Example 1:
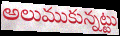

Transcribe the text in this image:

అలుముకున్నట్టు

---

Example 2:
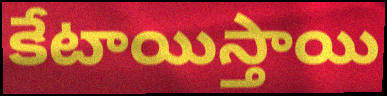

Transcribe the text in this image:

కేటాయిస్తాయి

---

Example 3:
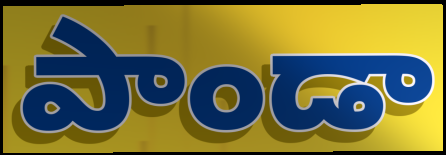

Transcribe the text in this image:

పాండా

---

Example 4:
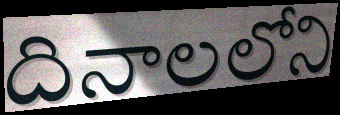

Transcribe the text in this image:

దినాలలోని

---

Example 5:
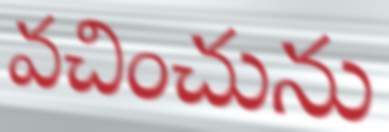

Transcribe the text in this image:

వచించును